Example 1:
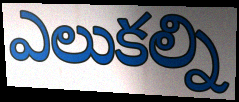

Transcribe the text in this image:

ఎలుకల్ని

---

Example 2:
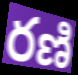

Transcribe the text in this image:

రణి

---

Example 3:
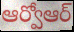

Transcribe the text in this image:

ఆర్వోఆర్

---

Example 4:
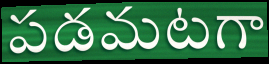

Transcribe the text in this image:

పడమటగా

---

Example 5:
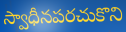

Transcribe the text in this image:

స్వాధీనపరచుకొని